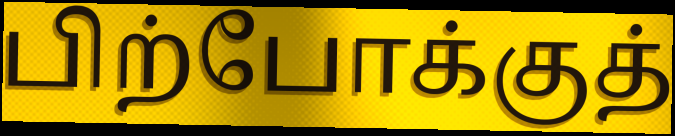
பிற்போக்குத்